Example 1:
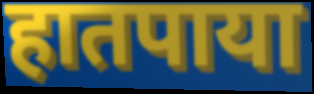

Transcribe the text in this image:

हातपाया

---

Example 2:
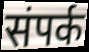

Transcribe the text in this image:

संपर्क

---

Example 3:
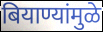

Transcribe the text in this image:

बियाण्यांमुळे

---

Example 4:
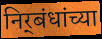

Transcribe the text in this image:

निर्बंधांच्या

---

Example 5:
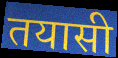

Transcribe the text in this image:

तयासी